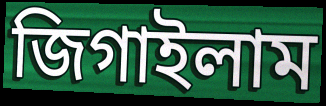
জিগাইলাম